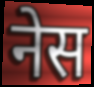
नेस